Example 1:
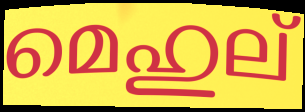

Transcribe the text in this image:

മെഹുല്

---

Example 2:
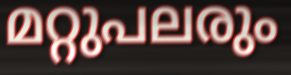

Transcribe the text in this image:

മറ്റുപലരും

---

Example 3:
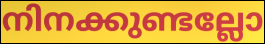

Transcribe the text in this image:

നിനക്കുണ്ടല്ലോ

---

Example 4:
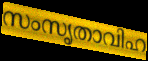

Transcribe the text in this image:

സംസൃതാവിഹ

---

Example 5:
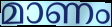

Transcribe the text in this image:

മാണം